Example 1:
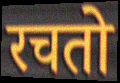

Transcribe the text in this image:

रचतो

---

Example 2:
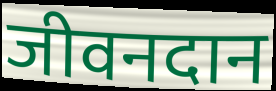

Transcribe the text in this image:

जीवनदान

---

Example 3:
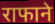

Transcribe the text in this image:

राफाने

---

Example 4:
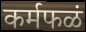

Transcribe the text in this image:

कर्मफळं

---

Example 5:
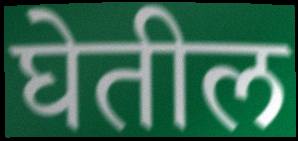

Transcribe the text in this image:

घेतील